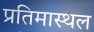
प्रतिमास्थल